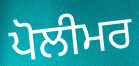
ਪੋਲੀਮਰ